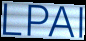
LPAI